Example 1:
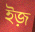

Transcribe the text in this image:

ইজ়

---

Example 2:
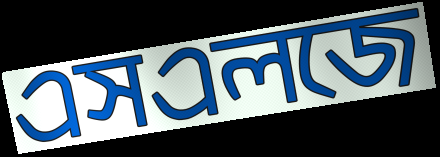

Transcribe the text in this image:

এসএলজে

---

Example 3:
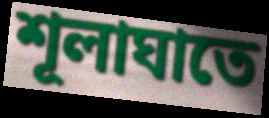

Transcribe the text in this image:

শূলাঘাতে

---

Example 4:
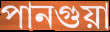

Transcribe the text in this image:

পানগুয়া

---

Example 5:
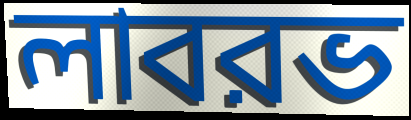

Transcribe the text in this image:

লাবরভ